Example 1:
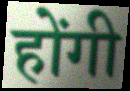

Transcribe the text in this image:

होंगी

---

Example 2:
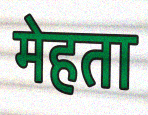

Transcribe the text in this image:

मेहता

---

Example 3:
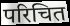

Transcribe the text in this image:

परिचित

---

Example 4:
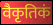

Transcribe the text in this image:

वैकृतिकं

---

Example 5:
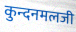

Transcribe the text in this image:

कुन्दनमलजी